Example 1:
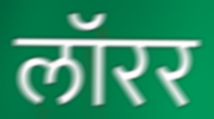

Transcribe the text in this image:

लॉरर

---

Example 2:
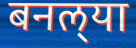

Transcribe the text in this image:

बनल्या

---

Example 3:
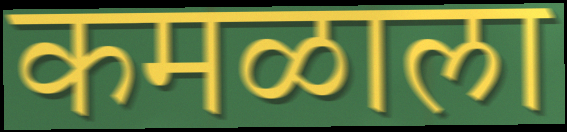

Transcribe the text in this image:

कमळाला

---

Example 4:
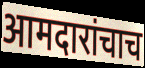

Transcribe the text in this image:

आमदारांचाच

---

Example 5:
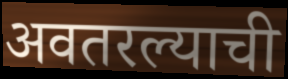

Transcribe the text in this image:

अवतरल्याची